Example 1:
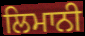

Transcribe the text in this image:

ਲਿਮਾਨੀ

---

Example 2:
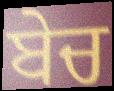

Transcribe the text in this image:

ਬੇਚ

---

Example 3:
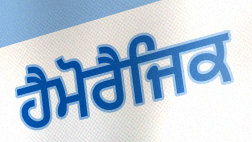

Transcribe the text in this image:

ਹੈਮੋਰੈਜਿਕ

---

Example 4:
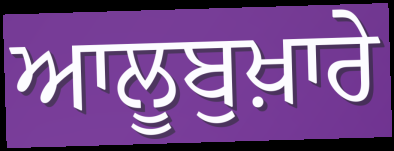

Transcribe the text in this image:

ਆਲੂਬੁਖ਼ਾਰੇ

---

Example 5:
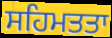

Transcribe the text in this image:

ਸਹਿਮਤਤਾ